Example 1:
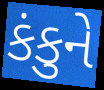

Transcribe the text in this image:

કંકુને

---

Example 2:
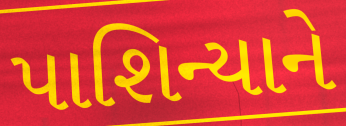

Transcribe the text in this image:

પાશિન્યાને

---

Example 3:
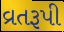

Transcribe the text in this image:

વ્રતરૂપી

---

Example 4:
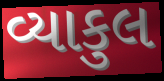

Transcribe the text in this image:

વ્યાકુલ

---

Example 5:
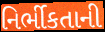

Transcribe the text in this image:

નિર્ભીકતાની